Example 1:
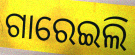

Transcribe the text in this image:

ଗାରେଇଲି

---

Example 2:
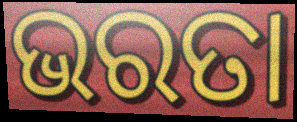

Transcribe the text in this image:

ଭରତା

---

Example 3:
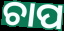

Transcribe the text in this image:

ଚାପ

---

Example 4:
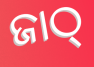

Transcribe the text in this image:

ଜାଠ୍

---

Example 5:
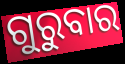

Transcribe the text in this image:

ଗୁରୁବାର